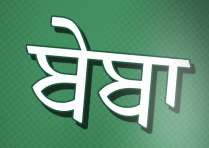
ਬੇਬਾ